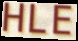
HLE